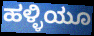
ಹಳ್ಳಿಯೂ